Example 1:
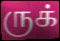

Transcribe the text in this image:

ருக்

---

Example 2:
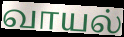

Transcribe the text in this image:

வாயல்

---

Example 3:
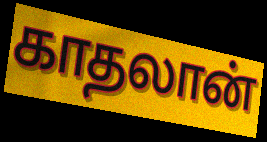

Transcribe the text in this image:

காதலான்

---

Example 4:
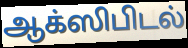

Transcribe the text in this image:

ஆக்ஸிபிடல்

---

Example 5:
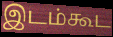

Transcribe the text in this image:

இடம்கூட